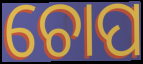
ଚୋପ